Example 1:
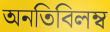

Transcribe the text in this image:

অনতিবিলম্ব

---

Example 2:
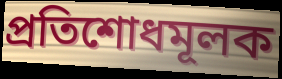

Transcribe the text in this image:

প্রতিশোধমূলক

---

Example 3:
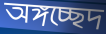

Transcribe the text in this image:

অঙ্গচ্ছেদ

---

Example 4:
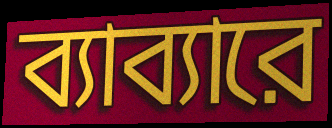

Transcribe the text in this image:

ব্যাব্যারে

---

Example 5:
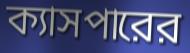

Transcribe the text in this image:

ক্যাসপারের